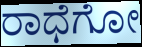
ರಾಧೆಗೋ